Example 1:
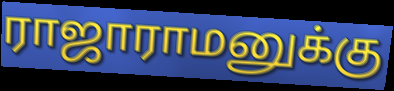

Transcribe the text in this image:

ராஜாராமனுக்கு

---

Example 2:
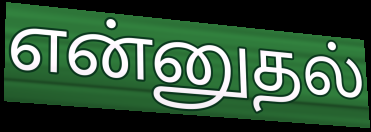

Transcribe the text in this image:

என்னுதல்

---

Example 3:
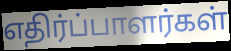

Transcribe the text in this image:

எதிர்ப்பாளர்கள்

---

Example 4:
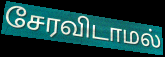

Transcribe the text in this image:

சேரவிடாமல்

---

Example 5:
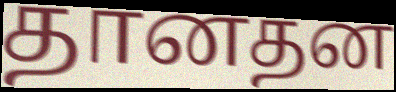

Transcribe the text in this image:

தானதன